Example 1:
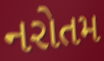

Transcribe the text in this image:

નરોતમ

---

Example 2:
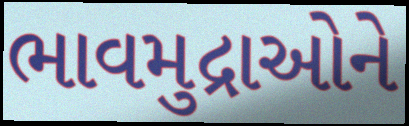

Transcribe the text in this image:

ભાવમુદ્રાઓને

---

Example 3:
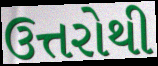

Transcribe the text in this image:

ઉત્તરોથી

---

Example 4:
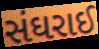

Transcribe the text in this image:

સંઘરાઈ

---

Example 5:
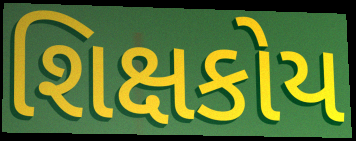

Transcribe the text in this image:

શિક્ષકોય